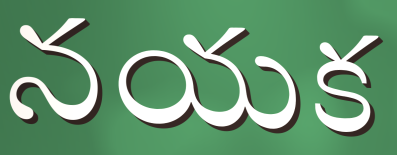
నయక